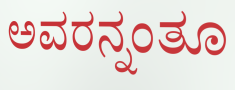
ಅವರನ್ನಂತೂ